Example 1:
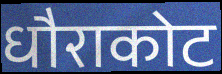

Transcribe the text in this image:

धौराकोट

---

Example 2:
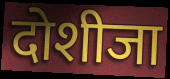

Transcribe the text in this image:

दोशीजा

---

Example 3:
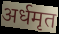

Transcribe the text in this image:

अर्धमृत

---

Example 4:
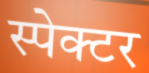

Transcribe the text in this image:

स्पेक्टर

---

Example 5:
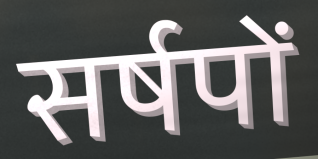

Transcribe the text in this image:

सर्षपों